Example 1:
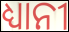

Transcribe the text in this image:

ଧ୍ୟାନୀ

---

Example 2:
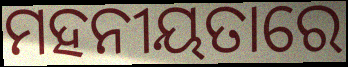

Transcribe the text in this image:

ମହନୀୟତାରେ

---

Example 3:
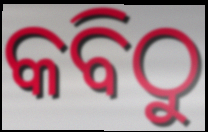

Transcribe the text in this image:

କବିଠୁ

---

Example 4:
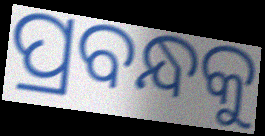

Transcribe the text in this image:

ପ୍ରବନ୍ଧକୁ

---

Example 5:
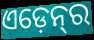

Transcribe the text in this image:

ଏଡ଼େନ୍‍ର